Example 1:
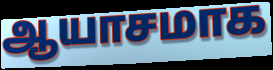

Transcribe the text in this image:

ஆயாசமாக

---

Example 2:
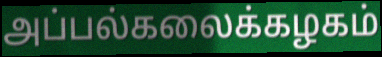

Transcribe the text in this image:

அப்பல்கலைக்கழகம்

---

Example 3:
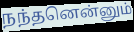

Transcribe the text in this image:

நந்தனென்னும்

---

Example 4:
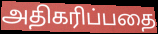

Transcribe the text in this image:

அதிகரிப்பதை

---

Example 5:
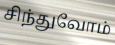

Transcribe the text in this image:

சிந்துவோம்